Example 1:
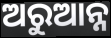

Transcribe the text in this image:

ଅରୁଆନ୍ନ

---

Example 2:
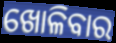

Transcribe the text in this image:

ଖୋଳିବାର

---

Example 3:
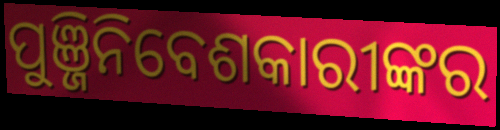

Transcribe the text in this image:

ପୁଞ୍ଜିନିବେଶକାରୀଙ୍କର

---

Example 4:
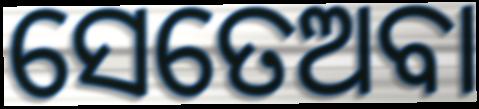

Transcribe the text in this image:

ସେତେଅବା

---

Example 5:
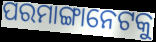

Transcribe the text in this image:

ପରମାଙ୍ଗାନେଟକୁ